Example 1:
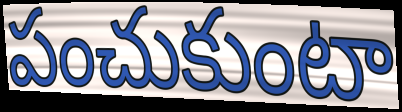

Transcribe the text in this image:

పంచుకుంటా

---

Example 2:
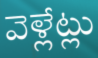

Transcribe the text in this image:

వెళ్లేట్లు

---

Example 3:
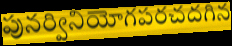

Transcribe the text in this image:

పునర్వినియోగపరచదగిన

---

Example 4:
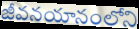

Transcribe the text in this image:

జీవనయానంలోని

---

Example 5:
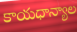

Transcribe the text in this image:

కాయధాన్యాల